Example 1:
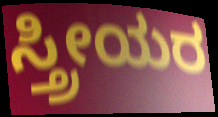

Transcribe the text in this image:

ಸ್ತ್ರೀಯರ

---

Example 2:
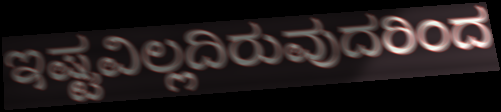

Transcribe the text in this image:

ಇಷ್ಟವಿಲ್ಲದಿರುವುದರಿಂದ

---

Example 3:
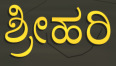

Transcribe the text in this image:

ಶ್ರೀಹರಿ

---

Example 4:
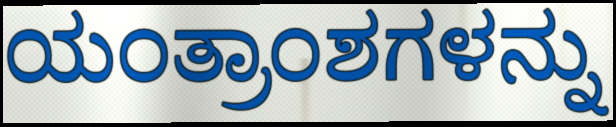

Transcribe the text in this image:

ಯಂತ್ರಾಂಶಗಳನ್ನು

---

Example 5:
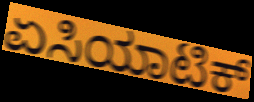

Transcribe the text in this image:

ಏಸಿಯಾಟಿಕ್